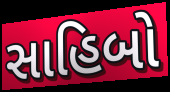
સાહિબો